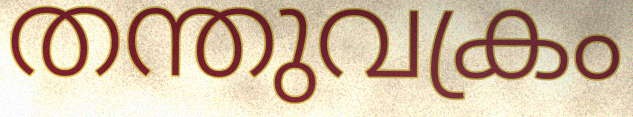
തന്തുവക്രം